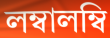
লম্বালম্বি